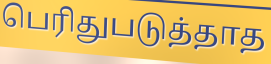
பெரிதுபடுத்தாத